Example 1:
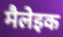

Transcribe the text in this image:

मैलेइक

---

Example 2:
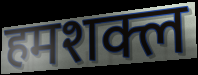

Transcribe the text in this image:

हमशक्ल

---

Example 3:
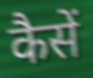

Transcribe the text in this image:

कैसें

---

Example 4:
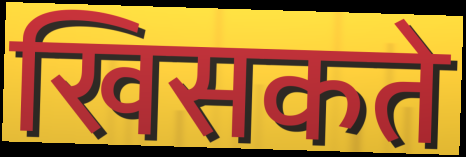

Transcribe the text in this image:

खिसकते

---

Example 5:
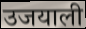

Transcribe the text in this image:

उजयाली